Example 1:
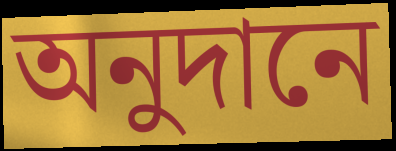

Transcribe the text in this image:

অনুদানে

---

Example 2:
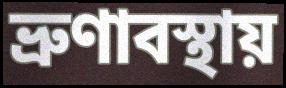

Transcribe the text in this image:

ভ্রুণাবস্থায়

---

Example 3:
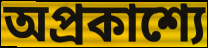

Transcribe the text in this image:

অপ্রকাশ্যে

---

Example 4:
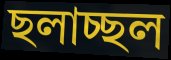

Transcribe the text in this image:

ছলাচ্ছল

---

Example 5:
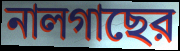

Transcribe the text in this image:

নালগাছের